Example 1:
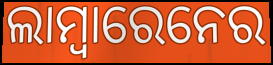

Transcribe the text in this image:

ଲାମ୍ବାରେନେର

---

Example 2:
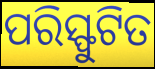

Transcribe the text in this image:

ପରିସ୍ଫୁଟିତ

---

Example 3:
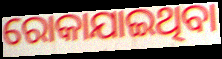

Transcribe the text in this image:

ରୋକାଯାଇଥିବା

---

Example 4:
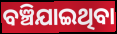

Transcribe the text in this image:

ବଞ୍ଚିଯାଇଥିବା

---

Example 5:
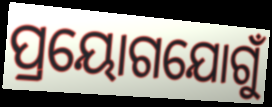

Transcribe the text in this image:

ପ୍ରୟୋଗଯୋଗୁଁ